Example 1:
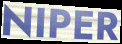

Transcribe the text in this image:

NIPER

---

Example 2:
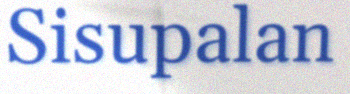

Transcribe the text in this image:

Sisupalan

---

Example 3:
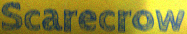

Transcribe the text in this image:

Scarecrow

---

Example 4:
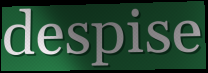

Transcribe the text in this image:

despise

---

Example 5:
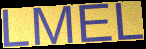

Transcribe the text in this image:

LMEL